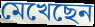
মেখেছেন